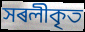
সৰলীকৃত